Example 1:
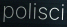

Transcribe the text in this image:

polisci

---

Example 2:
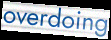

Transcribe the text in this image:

overdoing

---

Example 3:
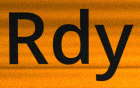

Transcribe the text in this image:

Rdy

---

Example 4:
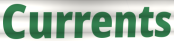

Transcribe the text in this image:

Currents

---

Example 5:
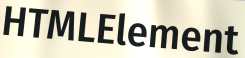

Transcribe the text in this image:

HTMLElement